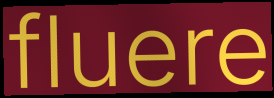
fluere